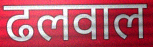
ढलवाल